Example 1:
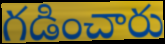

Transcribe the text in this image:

గడించారు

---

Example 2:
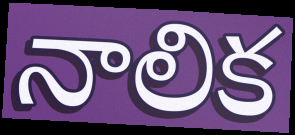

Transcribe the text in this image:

నాలిక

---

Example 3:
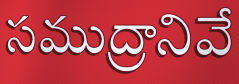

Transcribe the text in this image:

సముద్రానివే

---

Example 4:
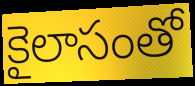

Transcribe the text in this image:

కైలాసంతో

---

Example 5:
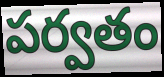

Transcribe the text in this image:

పర్వతం